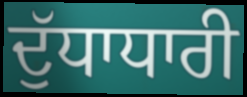
ਦੁੱਧਾਧਾਰੀ